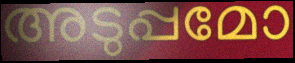
അടുപ്പമോ